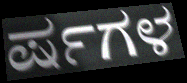
ರ್ಷಗಳ